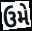
ઉમે